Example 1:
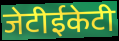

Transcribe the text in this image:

जेटीईकेटी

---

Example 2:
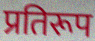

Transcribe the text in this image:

प्रतिरूप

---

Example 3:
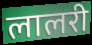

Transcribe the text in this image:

लालरी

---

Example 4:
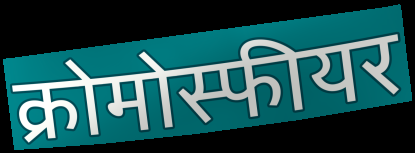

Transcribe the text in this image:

क्रोमोस्फीयर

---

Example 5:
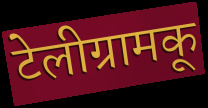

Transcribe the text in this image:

टेलीग्रामकू